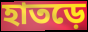
হাতড়ে